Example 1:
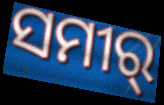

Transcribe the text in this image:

ସମୀର୍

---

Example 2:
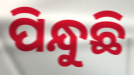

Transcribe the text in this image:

ପିନ୍ଧୁଛି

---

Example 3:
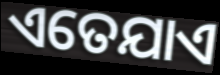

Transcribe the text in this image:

ଏତେଯାଏ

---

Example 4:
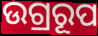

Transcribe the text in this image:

ଉଗ୍ରରୂପ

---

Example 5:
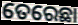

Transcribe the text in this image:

ତେରେଛା